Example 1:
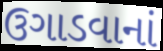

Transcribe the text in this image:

ઉગાડવાનાં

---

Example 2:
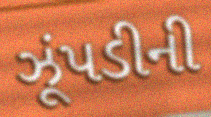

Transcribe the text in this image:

ઝૂંપડીની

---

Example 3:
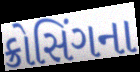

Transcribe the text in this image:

ક્રોસિંગના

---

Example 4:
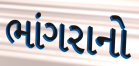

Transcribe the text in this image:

ભાંગરાનો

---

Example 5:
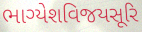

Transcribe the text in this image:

ભાગ્યેશવિજયસૂરિ